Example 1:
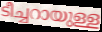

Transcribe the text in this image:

ടീച്ചറായുള്ള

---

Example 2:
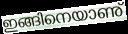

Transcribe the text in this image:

ഇങ്ങിനെയാണു്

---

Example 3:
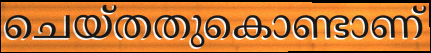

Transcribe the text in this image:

ചെയ്തതുകൊണ്ടാണ്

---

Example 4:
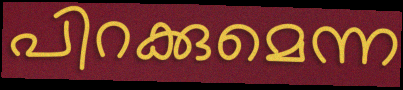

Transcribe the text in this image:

പിറക്കുമെന്ന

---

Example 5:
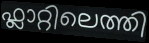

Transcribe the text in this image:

ഫ്ലാറ്റിലെത്തി